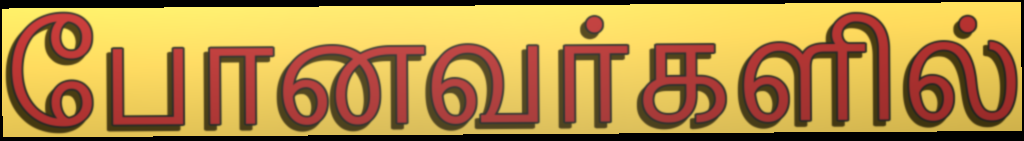
போனவர்களில்